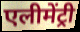
एलीमेंट्री